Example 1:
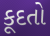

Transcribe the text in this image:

કૂદતો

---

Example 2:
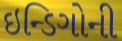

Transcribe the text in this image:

ઇન્ડિગોની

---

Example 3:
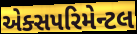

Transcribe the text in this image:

એક્સપરિમેન્ટલ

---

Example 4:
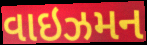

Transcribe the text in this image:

વાઇઝમન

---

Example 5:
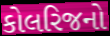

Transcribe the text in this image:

કોલરિજનો